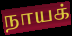
நாயக்